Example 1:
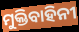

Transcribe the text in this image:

ମୁକ୍ତିବାହିନୀ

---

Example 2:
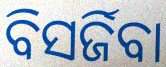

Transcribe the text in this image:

ବିସର୍ଜିବା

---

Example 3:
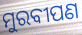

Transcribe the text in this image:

ମୁରବୀପଣ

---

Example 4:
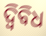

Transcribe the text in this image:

ଦ୍ୱିବିଧ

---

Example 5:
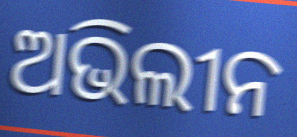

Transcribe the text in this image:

ଅଭିଲୀନ